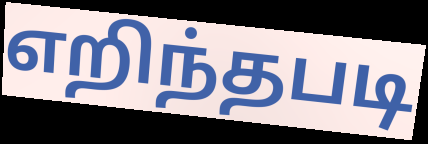
எறிந்தபடி